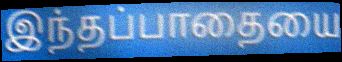
இந்தப்பாதையை